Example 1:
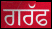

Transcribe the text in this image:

ਗਰੱਫ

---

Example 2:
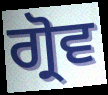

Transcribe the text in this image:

ਗ੍ਰੋਵ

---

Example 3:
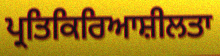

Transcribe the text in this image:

ਪ੍ਰਤਿਕਿਰਿਆਸ਼ੀਲਤਾ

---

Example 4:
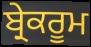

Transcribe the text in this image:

ਬ੍ਰੇਕਰੂਮ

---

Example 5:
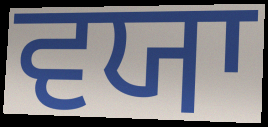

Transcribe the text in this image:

ਵਯਾ